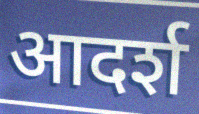
आदर्श